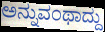
ಅನ್ನುವಂಥಾದ್ದು